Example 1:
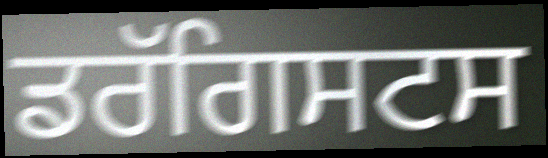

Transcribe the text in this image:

ਡਰੱਗਿਸਟਸ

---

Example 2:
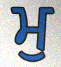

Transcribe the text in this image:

ਮੁ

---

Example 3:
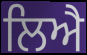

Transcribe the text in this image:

ਲਿਐ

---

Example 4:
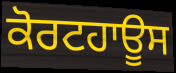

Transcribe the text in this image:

ਕੋਰਟਹਾਊਸ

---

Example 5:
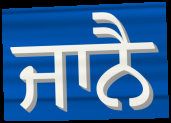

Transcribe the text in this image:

ਜਾਨੈ